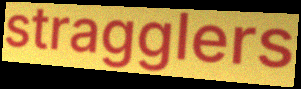
stragglers